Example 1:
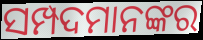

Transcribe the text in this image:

ସମ୍ପଦମାନଙ୍କର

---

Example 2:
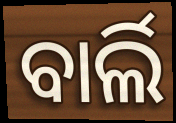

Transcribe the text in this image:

ବାର୍ଲି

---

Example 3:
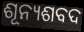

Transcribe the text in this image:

ଶୂନ୍ୟଶବଦ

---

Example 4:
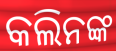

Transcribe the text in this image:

କଲିନଙ୍କ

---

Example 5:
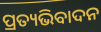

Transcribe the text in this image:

ପ୍ରତ୍ୟଭିବାଦନ